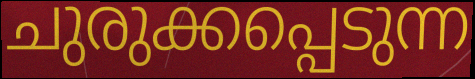
ചുരുക്കപ്പെടുന്ന